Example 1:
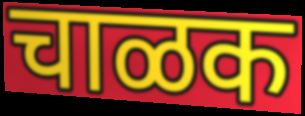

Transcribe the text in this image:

चाळक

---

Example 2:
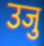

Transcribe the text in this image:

उजु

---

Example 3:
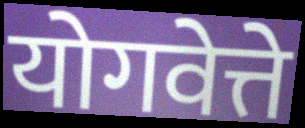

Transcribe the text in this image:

योगवेत्ते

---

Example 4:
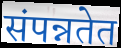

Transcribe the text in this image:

संपन्नतेत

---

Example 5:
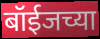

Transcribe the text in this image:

बॉईजच्या